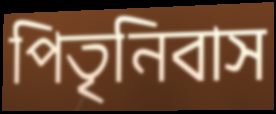
পিতৃনিবাস